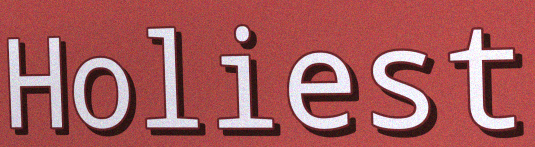
Holiest